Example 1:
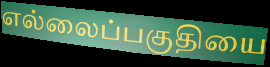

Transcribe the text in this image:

எல்லைப்பகுதியை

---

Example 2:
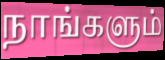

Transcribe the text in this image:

நாங்களும்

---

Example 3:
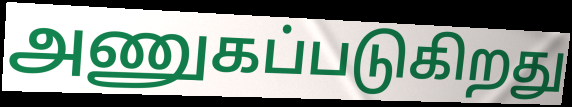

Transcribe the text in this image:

அணுகப்படுகிறது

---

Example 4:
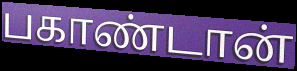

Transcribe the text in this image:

பகாண்டான்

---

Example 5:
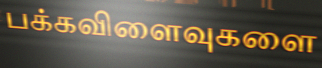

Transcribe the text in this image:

பக்கவிளைவுகளை